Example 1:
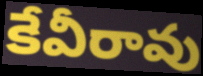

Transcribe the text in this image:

కేవీరావు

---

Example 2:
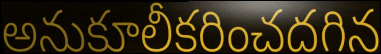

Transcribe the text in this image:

అనుకూలీకరించదగిన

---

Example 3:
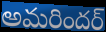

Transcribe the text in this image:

అమరిందర్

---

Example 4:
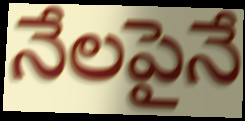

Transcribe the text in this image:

నేలపైనే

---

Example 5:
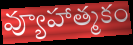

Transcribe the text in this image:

వ్యూహాత్మకం